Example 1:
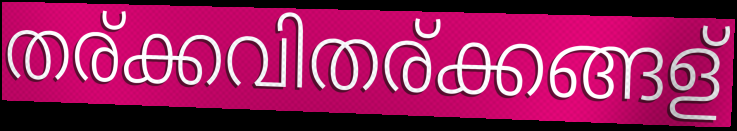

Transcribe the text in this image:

തര്ക്കവിതര്ക്കങ്ങള്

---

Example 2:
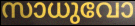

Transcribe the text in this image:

സാധുവോ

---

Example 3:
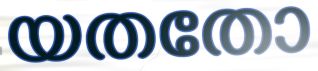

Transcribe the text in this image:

യതതോ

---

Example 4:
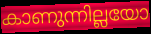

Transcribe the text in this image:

കാണുന്നില്ലയോ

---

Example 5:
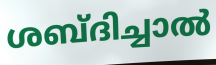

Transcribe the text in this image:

ശബ്ദിച്ചാൽ